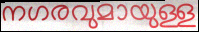
നഗരവുമായുള്ള